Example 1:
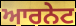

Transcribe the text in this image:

ਆਰਨੇਟ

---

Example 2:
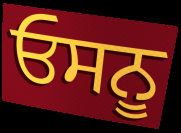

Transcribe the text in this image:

ਓਸਨੂ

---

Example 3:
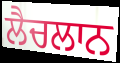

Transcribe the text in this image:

ਲੈਚਲਾਨ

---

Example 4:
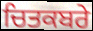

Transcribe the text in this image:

ਚਿਤਕਬਰੇ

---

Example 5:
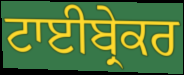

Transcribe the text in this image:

ਟਾਈਬ੍ਰੇਕਰ